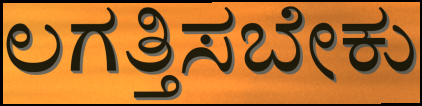
ಲಗತ್ತಿಸಬೇಕು